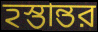
হস্তান্তর